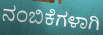
ನಂಬಿಕೆಗಳಾಗಿ